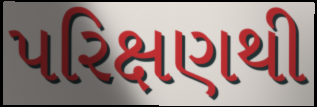
પરિક્ષણથી